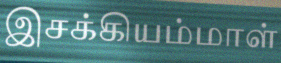
இசக்கியம்மாள்